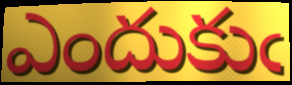
ఎందుకుఁ